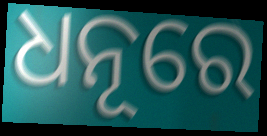
ଧନୂରେ